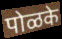
पोळके